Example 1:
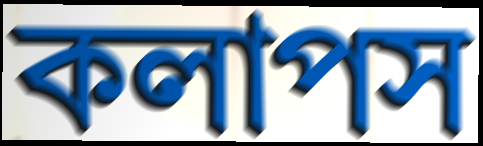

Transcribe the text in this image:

কলাপস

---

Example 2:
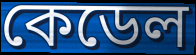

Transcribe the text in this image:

কেডেল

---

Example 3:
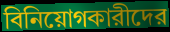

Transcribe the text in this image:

বিনিয়োগকারীদের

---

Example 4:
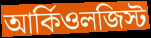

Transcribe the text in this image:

আর্কিওলজিস্ট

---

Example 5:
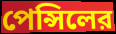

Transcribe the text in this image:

পেন্সিলের